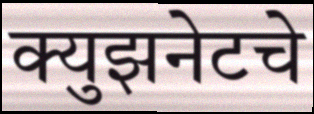
क्युझनेटचे